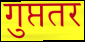
गुप्ततर